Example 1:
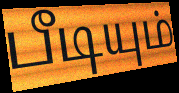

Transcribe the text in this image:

பீடியும்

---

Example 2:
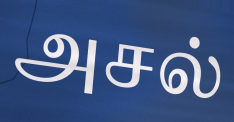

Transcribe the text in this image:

அசல்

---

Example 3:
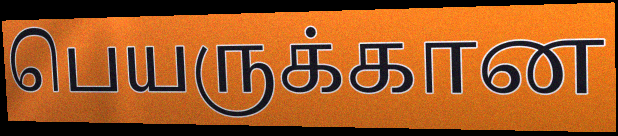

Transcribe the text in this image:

பெயருக்கான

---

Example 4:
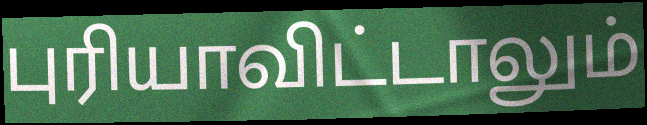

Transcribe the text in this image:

புரியாவிட்டாலும்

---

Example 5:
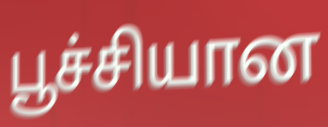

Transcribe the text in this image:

பூச்சியான